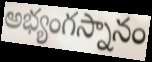
అభ్యంగస్నానం